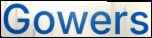
Gowers